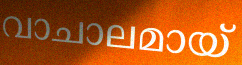
വാചാലമായ്